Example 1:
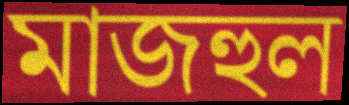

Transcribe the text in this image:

মাজহুল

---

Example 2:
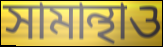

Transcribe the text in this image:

সামান্থাও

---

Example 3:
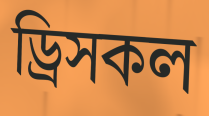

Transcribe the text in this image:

ড্রিসকল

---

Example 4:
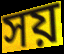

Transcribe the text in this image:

সয়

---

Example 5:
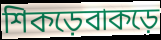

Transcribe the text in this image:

শিকড়েবাকড়ে